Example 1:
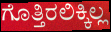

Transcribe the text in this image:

ಗೊತ್ತಿರಲಿಕ್ಕಿಲ್ಲ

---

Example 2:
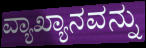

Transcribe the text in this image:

ವ್ಯಾಖ್ಯಾನವನ್ನು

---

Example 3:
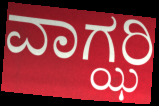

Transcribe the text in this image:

ವಾಗ್ಝರಿ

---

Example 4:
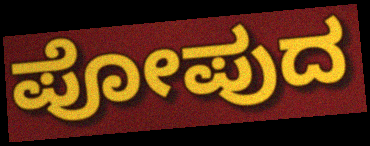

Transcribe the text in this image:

ಪೋಪುದ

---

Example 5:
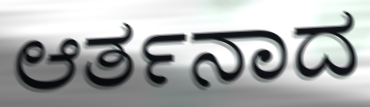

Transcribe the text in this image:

ಆರ್ತನಾದ